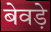
बेवड़े